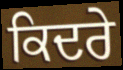
ਕਿਦਰੇ